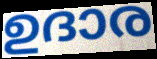
ഉദാര